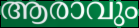
ആരാവും